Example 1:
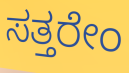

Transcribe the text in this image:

ಸತ್ತರೇಂ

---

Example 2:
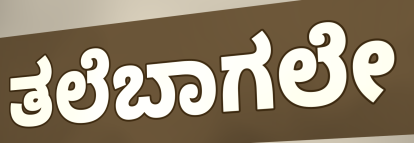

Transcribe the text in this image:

ತಲೆಬಾಗಲೇ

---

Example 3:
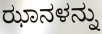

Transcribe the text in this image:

ಝಾನಳನ್ನು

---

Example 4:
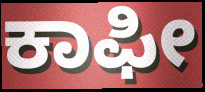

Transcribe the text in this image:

ಕಾಫೀ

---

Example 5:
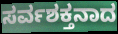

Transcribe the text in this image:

ಸರ್ವಶಕ್ತನಾದ